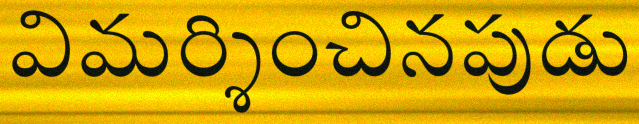
విమర్శించినపుడు